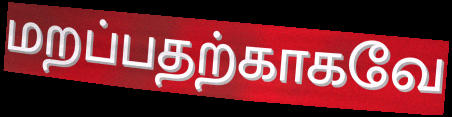
மறப்பதற்காகவே